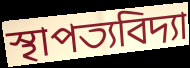
স্থাপত্যবিদ্যা